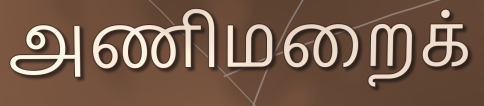
அணிமறைக்